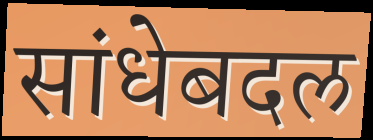
सांधेबदल